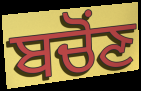
ਬਚੋਂਣ